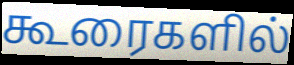
கூரைகளில்